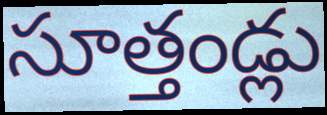
సూత్తండ్లు